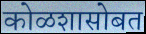
कोळशासोबत